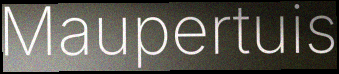
Maupertuis